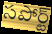
సపోర్ట్